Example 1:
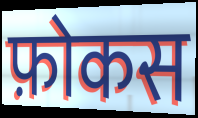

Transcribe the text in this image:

फ़ोकस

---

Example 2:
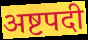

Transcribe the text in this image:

अष्टपदी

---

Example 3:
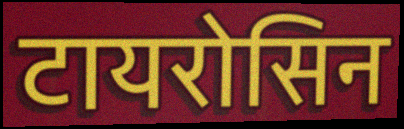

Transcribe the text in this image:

टायरोसिन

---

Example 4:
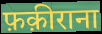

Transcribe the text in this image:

फ़क़ीराना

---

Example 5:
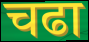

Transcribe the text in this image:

चढा